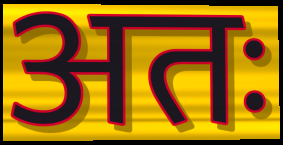
अतः